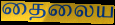
தைலைய